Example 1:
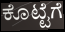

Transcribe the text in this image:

ಕೊಟ್ಟೆಗೆ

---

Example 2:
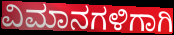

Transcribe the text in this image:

ವಿಮಾನಗಳಿಗಾಗಿ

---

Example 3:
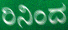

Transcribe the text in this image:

ರಿನಿಂದ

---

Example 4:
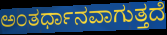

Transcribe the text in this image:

ಅಂತರ್ಧಾನವಾಗುತ್ತದೆ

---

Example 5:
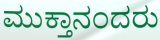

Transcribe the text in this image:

ಮುಕ್ತಾನಂದರು